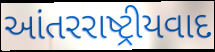
આંતરરાષ્ટ્રીયવાદ